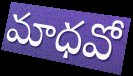
మాధవో